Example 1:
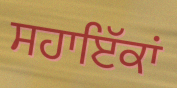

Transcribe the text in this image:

ਸਹਾਇੱਕਾਂ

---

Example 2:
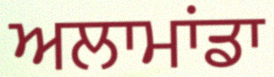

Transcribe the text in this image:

ਅਲਾਮਾਂਡਾ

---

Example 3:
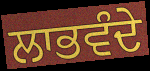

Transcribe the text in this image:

ਲਾਭਵੰਦੇ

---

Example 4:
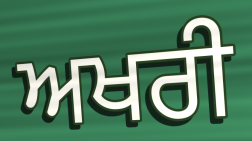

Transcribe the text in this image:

ਅਖਰੀ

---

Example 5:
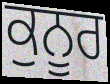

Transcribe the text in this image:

ਕੁਨੂਰ